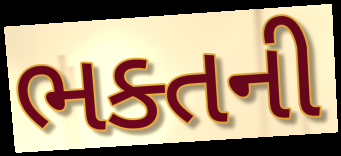
ભક્તની